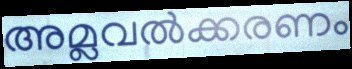
അമ്ലവൽക്കരണം